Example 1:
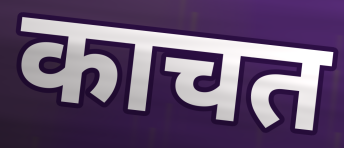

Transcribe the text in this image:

काचत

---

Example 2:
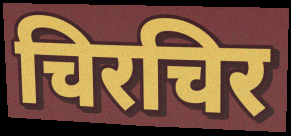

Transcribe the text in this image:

चिरचिर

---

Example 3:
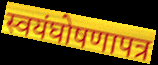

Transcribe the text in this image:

स्वयंघोषणापत्र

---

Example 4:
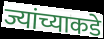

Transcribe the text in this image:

ज्यांच्याकडे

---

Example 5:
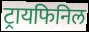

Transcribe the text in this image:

ट्रायफिनिल